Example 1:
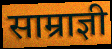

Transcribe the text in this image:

साम्राज्ञी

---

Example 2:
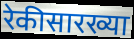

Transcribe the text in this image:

रेकीसारख्या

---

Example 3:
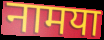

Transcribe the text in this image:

नामया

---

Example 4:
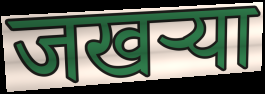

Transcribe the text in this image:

जखऱ्या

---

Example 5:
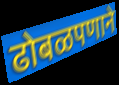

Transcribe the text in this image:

ढोबळपणाने